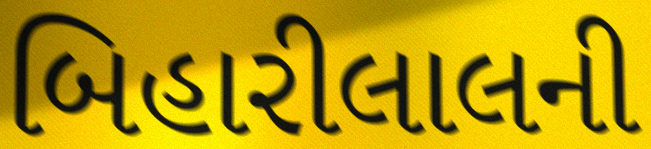
બિહારીલાલની